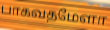
பாகவதமேளா